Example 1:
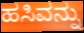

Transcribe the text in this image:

ಹಸಿವನ್ನು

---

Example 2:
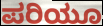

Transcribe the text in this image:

ಪರಿಯೂ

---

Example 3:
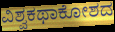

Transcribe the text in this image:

ವಿಶ್ವಕಥಾಕೋಶದ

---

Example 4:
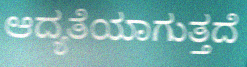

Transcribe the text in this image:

ಆದ್ಯತೆಯಾಗುತ್ತದೆ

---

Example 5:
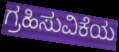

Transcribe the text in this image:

ಗ್ರಹಿಸುವಿಕೆಯ